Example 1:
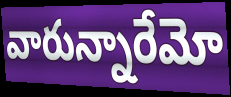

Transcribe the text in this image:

వారున్నారేమో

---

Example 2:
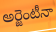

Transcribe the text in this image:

అర్జెంటీనా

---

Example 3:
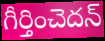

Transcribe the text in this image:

గీర్తించెదన్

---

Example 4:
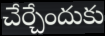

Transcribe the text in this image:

చేర్చేందుకు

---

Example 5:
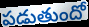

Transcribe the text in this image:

పడుతుందో